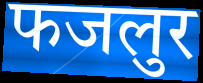
फजलुर